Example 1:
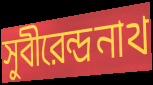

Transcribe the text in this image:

সুবীরেন্দ্রনাথ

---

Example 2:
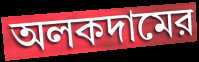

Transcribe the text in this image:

অলকদামের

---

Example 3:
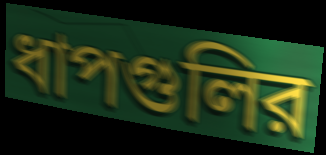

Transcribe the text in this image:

ধাপগুলির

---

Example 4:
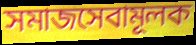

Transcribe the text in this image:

সমাজসেবামূলক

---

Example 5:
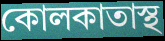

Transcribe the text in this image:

কোলকাতাস্থ